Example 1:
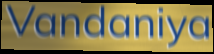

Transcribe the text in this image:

Vandaniya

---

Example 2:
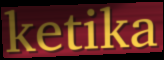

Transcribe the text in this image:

ketika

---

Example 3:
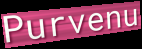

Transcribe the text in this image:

Purvenu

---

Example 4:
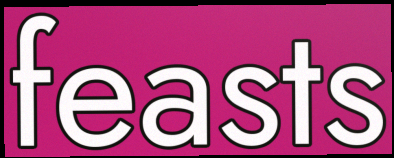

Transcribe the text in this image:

feasts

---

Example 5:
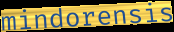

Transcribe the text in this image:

mindorensis